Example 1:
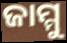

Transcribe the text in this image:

ଜାମ୍ମୁ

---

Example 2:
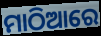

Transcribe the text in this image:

ମାଠିଆରେ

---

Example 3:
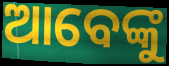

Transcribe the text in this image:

ଆବେଙ୍କୁ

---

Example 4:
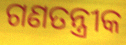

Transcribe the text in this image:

ଗଣତନ୍ତ୍ରୀକ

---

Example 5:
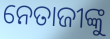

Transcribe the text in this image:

ନେତାଜୀଙ୍କୁ